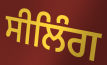
ਸੀਲਿੰਗ